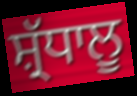
ਸ਼੍ਰੱਧਾਲੂ